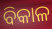
ବିକାଳ